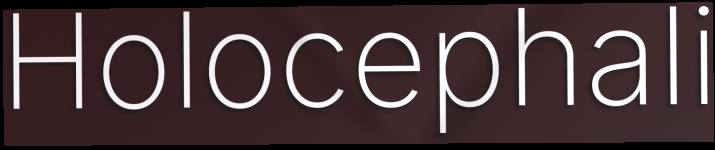
Holocephali